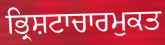
ਭ੍ਰਿਸ਼ਟਾਚਾਰਮੁਕਤ